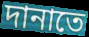
দানাতে